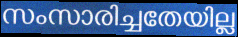
സംസാരിച്ചതേയില്ല